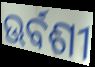
ଊର୍ବଶୀ